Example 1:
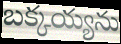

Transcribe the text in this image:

బక్కయ్యను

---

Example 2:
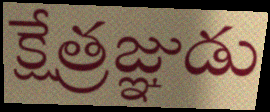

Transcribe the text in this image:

క్షేత్రజ్ఞుడు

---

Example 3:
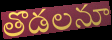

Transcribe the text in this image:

తొడలనూ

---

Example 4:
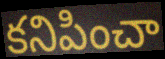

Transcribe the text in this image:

కనిపించా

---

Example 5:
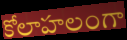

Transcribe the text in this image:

కోలాహలంగా